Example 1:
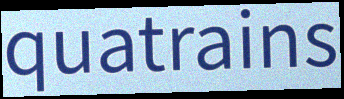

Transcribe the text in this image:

quatrains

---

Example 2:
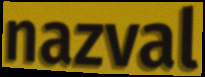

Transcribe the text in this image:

nazval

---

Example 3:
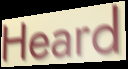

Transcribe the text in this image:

Heard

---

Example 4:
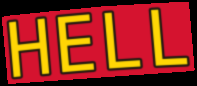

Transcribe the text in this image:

HELL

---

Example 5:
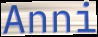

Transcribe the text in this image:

Anni